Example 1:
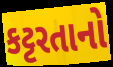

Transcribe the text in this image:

કટ્ટરતાનો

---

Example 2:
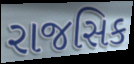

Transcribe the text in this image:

રાજસિક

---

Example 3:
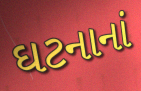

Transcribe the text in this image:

ઘટનાનાં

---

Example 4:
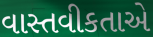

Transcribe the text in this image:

વાસ્તવીકતાએ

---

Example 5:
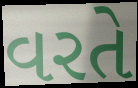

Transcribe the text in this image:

વરતે